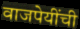
वाजपेयींची